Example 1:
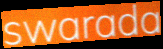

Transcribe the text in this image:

swarada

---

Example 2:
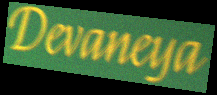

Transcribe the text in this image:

Devaneya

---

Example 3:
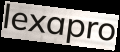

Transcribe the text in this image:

lexapro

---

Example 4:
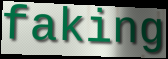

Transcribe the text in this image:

faking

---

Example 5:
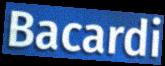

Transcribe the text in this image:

Bacardi